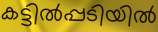
കട്ടിൽപ്പടിയിൽ